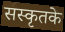
सस्कृतके